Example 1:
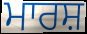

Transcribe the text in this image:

ਮਾਰਸ਼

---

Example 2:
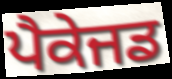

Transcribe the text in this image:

ਪੈਕੇਜਡ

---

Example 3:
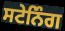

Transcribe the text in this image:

ਸਟੇਨਿੰਗ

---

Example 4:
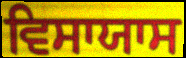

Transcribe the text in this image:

ਵਿਸਾਯਾਸ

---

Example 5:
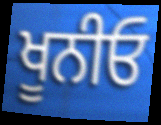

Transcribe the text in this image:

ਖੂਨੀਓ